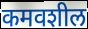
कमवशील